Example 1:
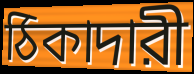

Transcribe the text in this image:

ঠিকাদারী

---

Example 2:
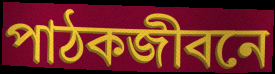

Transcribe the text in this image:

পাঠকজীবনে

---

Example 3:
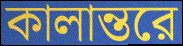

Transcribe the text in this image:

কালান্তরে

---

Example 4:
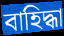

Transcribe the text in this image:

বাহিদ্ধা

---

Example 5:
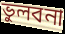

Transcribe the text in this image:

ভুলবনা